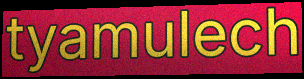
tyamulech